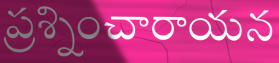
ప్రశ్నించారాయన